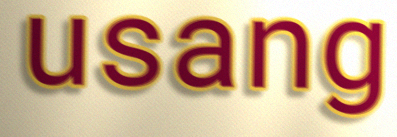
usang